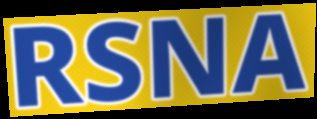
RSNA